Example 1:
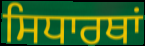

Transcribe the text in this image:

ਸਿਧਾਰਥਾਂ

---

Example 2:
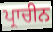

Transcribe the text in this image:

ਪ੍ਰਾਚੀਨ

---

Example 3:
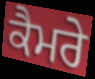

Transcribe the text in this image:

ਕੈਮਰੇ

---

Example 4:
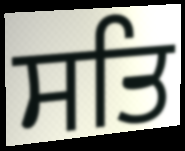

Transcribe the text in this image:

ਸਤਿ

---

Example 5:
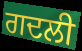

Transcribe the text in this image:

ਗਦਲੀ